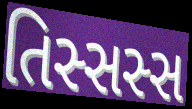
તિસ્સસ્સ